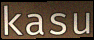
kasu